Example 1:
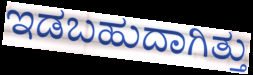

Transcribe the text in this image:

ಇಡಬಹುದಾಗಿತ್ತು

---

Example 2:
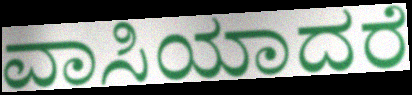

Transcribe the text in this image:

ವಾಸಿಯಾದರೆ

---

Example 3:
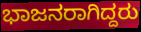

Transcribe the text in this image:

ಭಾಜನರಾಗಿದ್ದರು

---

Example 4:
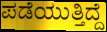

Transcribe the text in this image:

ಪಡೆಯುತ್ತಿದ್ದೆ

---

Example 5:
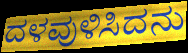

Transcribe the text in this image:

ದಳವುಳಿಸಿದನು